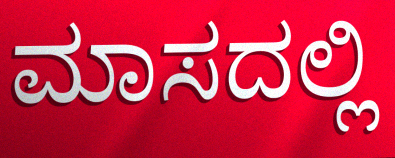
ಮಾಸದಲ್ಲಿ